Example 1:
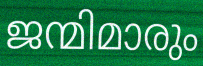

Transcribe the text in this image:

ജന്മിമാരും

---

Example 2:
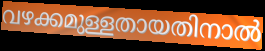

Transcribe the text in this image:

വഴക്കമുള്ളതായതിനാൽ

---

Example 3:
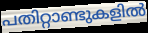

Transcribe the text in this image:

പതിറ്റാണ്ടുകളിൽ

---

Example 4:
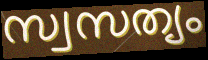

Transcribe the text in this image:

സ്വസത്യം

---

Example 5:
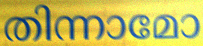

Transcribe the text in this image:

തിന്നാമോ